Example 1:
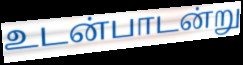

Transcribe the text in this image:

உடன்பாடன்று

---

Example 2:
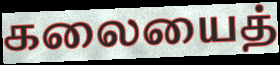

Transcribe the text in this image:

கலையைத்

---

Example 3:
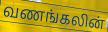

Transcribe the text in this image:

வணங்கலின்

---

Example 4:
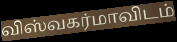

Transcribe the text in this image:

விஸ்வகர்மாவிடம்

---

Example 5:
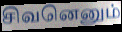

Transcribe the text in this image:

சிவனெனும்